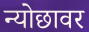
न्योछावर